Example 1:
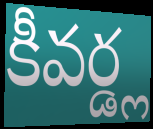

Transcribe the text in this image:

కీవర్డ్ల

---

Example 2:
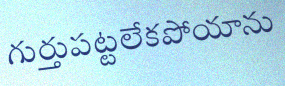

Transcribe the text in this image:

గుర్తుపట్టలేకపోయాను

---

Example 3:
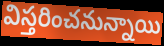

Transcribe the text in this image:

విస్తరించనున్నాయి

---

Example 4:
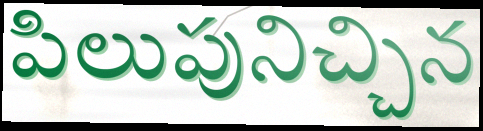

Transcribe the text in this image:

పిలుపునిచ్చిన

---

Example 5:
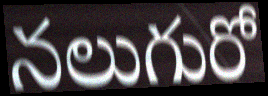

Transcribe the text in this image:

నలుగురో